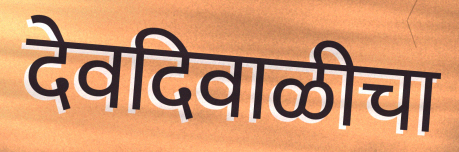
देवदिवाळीचा